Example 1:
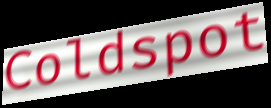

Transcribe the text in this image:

Coldspot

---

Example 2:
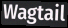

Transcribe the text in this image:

Wagtail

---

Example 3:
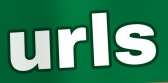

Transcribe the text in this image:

urls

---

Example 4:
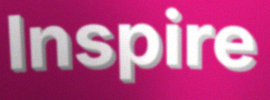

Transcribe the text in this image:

Inspire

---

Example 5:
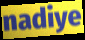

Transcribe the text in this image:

nadiye